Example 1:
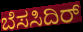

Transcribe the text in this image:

ಬೆಸಸಿದಿರ್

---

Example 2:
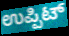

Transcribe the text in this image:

ಉಪ್ಪಿಟ್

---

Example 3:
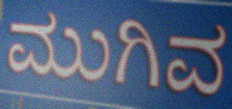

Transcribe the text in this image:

ಮುಗಿವ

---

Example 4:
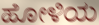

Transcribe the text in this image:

ಹೋಳಿಯ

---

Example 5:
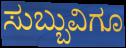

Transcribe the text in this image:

ಸುಬ್ಬುವಿಗೂ